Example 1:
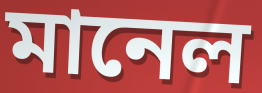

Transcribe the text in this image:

মানেল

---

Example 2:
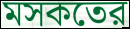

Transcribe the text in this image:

মসকতের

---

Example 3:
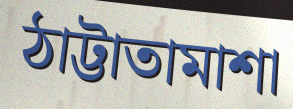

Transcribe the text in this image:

ঠাট্টাতামাশা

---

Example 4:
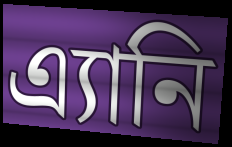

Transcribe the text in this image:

এ্যানি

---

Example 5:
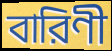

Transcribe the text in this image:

বারিণী